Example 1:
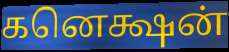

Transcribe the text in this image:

கனெக்ஷன்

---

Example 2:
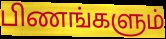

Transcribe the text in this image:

பிணங்களும்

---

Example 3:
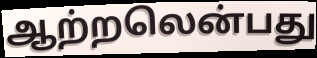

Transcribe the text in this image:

ஆற்றலென்பது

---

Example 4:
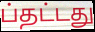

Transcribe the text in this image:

ப்தட்டது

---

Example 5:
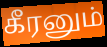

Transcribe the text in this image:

கீரனும்